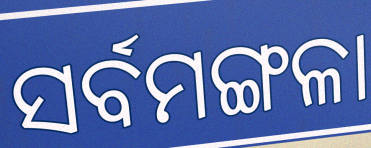
ସର୍ବମଙ୍ଗଳା